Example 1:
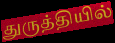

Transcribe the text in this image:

துருத்தியில்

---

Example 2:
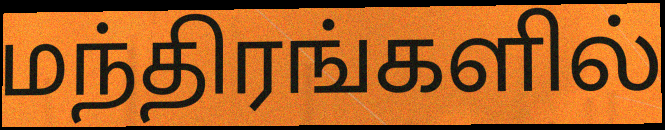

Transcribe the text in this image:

மந்திரங்களில்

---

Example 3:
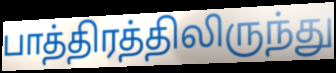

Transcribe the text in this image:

பாத்திரத்திலிருந்து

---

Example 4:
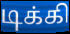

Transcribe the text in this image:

டிக்கி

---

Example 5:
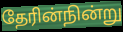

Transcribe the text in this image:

தேரின்நின்று